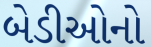
બેડીઓનો